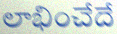
లాభించేదే